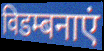
विडम्बनाएं